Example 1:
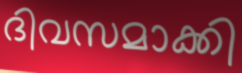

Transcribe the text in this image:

ദിവസമാക്കി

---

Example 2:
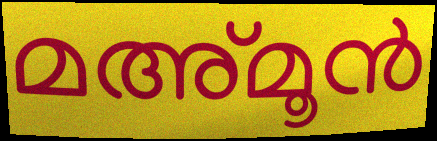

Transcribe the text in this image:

മഅ്മൂൻ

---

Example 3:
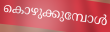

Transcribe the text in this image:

കൊഴുക്കുമ്പോൾ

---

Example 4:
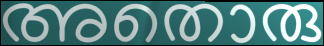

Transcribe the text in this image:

അതൊരു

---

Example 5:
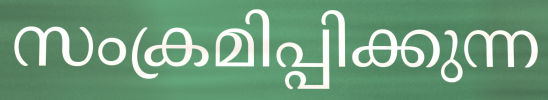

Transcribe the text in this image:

സംക്രമിപ്പിക്കുന്ന